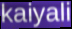
kaiyali